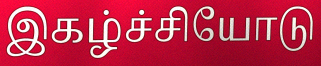
இகழ்ச்சியோடு